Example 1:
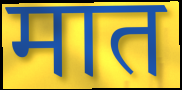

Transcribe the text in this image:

मात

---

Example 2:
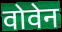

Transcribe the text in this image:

वोवेन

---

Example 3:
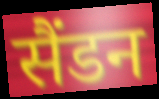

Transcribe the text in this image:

सैंडन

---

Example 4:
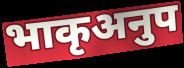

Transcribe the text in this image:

भाकृअनुप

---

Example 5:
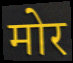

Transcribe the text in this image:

मोर